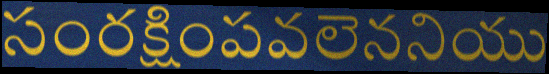
సంరక్షింపవలెననియు